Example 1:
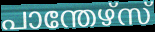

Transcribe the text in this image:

പാന്തേഴ്സ്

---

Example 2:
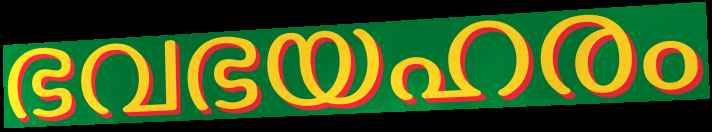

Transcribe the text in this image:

ഭവഭയഹരം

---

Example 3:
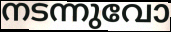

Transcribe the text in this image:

നടന്നുവോ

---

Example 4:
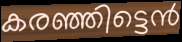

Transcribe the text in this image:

കരഞ്ഞിട്ടെൻ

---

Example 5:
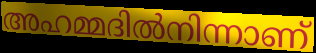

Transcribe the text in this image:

അഹമ്മദിൽനിന്നാണ്